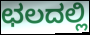
ಛಲದಲ್ಲಿ